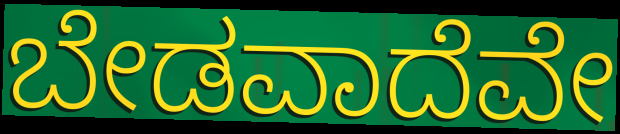
ಬೇಡವಾದೆವೇ